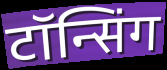
टॉन्सिंग